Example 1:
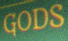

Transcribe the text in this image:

GODS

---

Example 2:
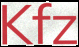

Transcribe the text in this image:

Kfz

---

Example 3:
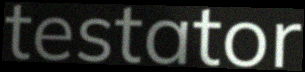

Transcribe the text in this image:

testator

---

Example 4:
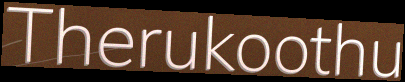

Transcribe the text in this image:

Therukoothu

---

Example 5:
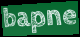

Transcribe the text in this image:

bapne